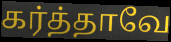
கர்த்தாவே